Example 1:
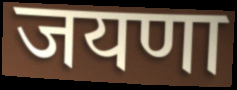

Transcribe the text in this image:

जयणा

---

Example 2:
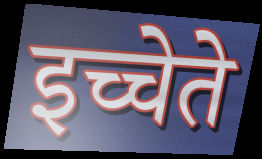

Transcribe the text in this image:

इच्चेते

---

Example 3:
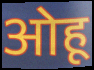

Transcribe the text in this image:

ओहू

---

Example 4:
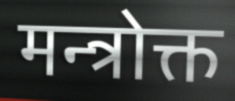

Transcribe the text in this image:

मन्त्रोक्त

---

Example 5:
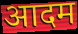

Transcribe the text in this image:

आदम